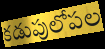
కడుపులోపల